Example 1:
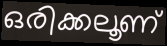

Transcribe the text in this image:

ഒരിക്കലൂണ്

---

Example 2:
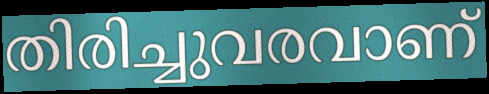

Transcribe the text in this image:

തിരിച്ചുവരവാണ്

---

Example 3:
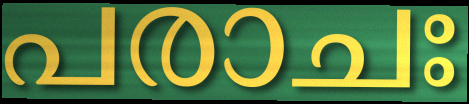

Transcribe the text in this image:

പരാചഃ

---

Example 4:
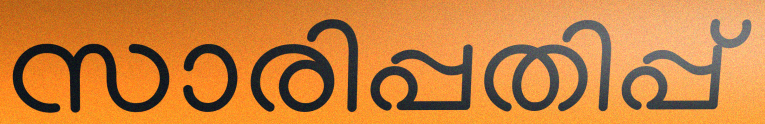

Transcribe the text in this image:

സാരിപ്പതിപ്പ്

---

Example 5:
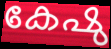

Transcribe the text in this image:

കേഷു